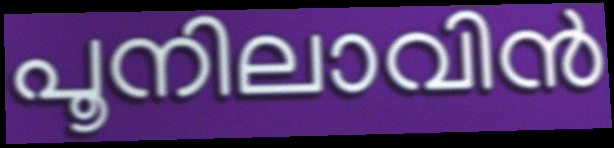
പൂനിലാവിൻ